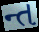
ન્ત